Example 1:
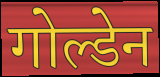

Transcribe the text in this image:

गोल्डेन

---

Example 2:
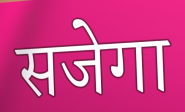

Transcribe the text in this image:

सजेगा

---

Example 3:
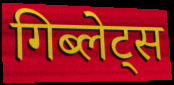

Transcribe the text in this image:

गिब्लेट्स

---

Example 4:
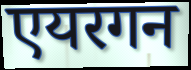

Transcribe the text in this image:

एयरगन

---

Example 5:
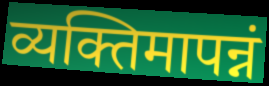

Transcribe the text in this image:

व्यक्तिमापन्नं